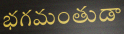
భగమంతుడా